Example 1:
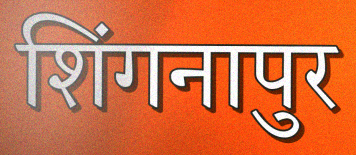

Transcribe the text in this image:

शिंगनापुर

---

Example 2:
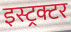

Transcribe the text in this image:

इस्ट्रक्टर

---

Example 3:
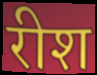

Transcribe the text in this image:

रीश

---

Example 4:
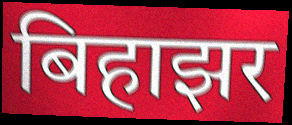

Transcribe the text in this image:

बिहाझर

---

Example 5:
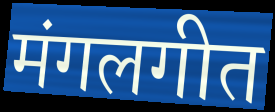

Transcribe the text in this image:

मंगलगीत